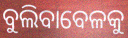
ବୁଲିବାବେଳକୁ